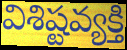
విశిష్టవ్యక్తి